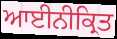
ਆਈਨੀਕ੍ਰਿਤ